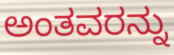
ಅಂತವರನ್ನು